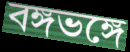
বঙ্গভঙ্গে